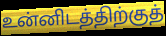
உன்னிடத்திற்குத்